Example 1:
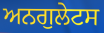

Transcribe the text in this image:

ਅਨਗੁਲੇਟਸ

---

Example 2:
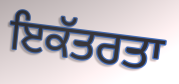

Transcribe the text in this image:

ਇਕੱਤਰਤਾ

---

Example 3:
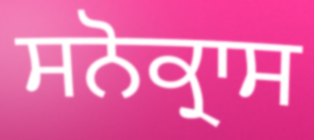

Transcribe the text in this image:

ਸਨੋਕ੍ਰਾਸ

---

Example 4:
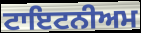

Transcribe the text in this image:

ਟਾਇਟਨੀਅਮ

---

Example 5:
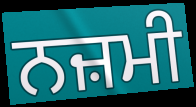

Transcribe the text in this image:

ਨਜ਼ਮੀ